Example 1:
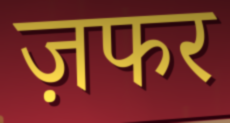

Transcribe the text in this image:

ज़फर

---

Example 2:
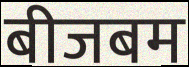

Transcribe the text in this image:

बीजबम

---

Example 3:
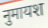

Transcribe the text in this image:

नुमायश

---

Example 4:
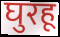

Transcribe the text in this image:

घुरहू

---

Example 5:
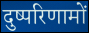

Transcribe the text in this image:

दुष्परिणामों